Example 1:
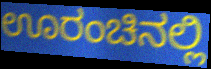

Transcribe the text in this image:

ಊರಂಚಿನಲ್ಲಿ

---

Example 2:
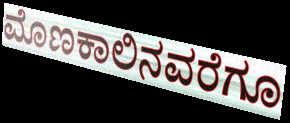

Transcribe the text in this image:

ಮೊಣಕಾಲಿನವರೆಗೂ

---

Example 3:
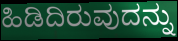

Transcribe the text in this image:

ಹಿಡಿದಿರುವುದನ್ನು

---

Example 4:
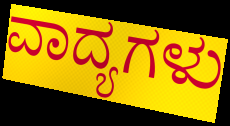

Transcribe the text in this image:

ವಾದ್ಯಗಳು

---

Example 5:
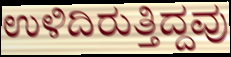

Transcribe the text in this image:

ಉಳಿದಿರುತ್ತಿದ್ದವು